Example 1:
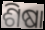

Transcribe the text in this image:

ଶିଷା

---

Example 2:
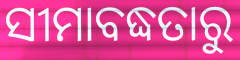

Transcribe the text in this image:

ସୀମାବଦ୍ଧତାରୁ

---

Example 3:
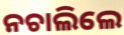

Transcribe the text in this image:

ନଚାଲିଲେ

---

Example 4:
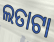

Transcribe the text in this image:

ଲତାଟା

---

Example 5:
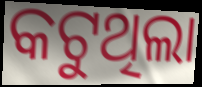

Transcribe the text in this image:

କଟୁଥିଲା